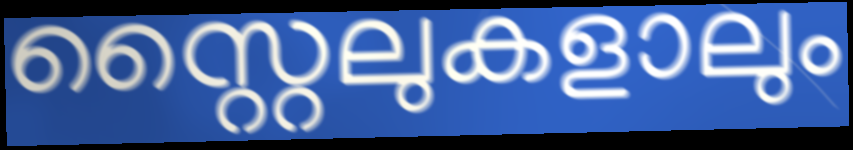
സ്റ്റൈലുകളാലും